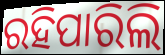
ରହିପାରିଲି